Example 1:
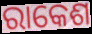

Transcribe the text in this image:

ରାକେଶ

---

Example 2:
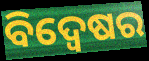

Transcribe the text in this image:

ବିଦ୍ବେଷର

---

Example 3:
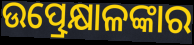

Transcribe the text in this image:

ଉତ୍ପ୍ରେକ୍ଷାଳଙ୍କାର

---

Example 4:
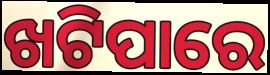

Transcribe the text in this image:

ଖଟିପାରେ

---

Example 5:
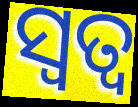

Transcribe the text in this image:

ସ୍ୱତ୍ୱ